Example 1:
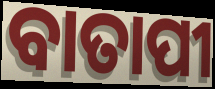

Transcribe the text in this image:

ବାତାପୀ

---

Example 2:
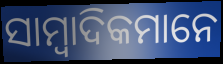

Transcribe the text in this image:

ସାମ୍ବାଦିକମାନେ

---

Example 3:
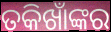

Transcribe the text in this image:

ତକିଖାଁଙ୍କର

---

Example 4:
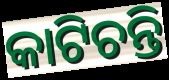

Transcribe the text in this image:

କାଟିଚନ୍ତି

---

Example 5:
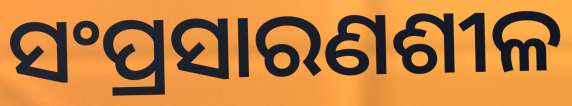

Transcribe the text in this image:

ସଂପ୍ରସାରଣଶୀଳ